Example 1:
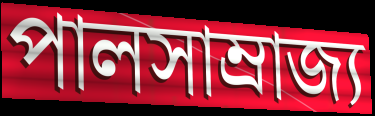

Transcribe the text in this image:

পালসাম্রাজ্য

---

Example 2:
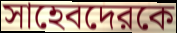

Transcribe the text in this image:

সাহেবদেরকে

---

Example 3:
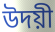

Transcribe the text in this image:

উদয়ী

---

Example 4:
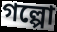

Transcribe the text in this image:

গল্পো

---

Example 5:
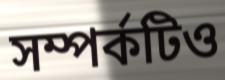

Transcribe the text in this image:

সম্পর্কটিও